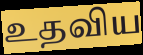
உதவிய